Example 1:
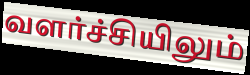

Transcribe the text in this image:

வளர்ச்சியிலும்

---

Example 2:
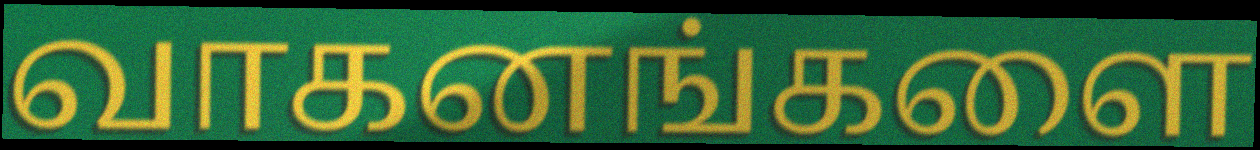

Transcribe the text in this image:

வாகனங்களை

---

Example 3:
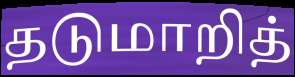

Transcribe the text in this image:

தடுமாறித்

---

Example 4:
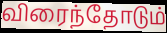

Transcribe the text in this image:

விரைந்தோடும்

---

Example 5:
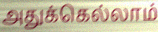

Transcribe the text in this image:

அதுக்கெல்லாம்